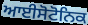
ਆਈਸੋਟੋਨਿਕ